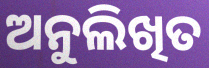
ଅନୁଲିଖିତ